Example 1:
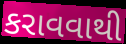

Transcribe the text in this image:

કરાવવાથી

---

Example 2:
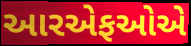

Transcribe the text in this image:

આરએફઓએ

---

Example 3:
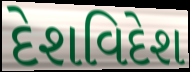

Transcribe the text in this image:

દેશવિદેશ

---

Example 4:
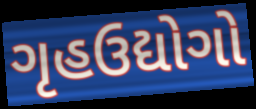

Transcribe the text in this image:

ગૃહઉદ્યોગો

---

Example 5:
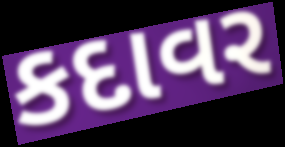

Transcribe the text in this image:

કદાવર